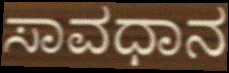
ಸಾವಧಾನ